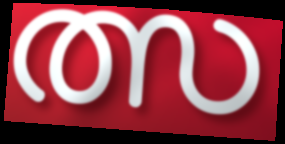
ത്സ